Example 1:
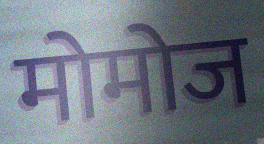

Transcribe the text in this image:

मोमोज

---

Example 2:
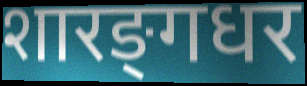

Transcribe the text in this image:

शारङ्गधर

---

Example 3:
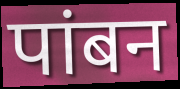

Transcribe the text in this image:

पांबन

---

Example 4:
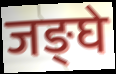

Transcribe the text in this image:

जङ्घे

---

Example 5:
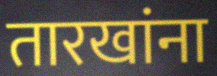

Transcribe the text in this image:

तारखांना